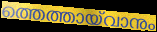
ത്തെത്തായ്‌വാനും